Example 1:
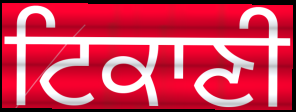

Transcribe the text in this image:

ਟਿਕਾਣੀ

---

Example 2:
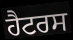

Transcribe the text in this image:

ਹੈਟਰਸ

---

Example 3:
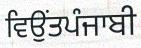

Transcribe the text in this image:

ਵਿਉਂਤਪੰਜਾਬੀ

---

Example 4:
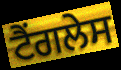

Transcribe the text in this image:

ਟੈਂਗਲੇਸ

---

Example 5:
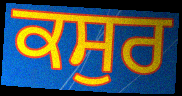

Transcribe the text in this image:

ਕਸੁਰ